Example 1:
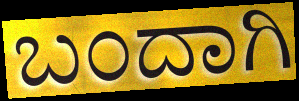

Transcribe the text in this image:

ಬಂದಾಗಿ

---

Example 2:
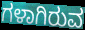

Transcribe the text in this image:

ಗಳಾಗಿರುವ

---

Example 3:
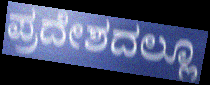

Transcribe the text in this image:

ಪ್ರದೇಶದಲ್ಲೂ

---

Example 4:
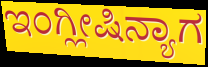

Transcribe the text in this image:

ಇಂಗ್ಲೀಷಿನ್ಯಾಗ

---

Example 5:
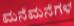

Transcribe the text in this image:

ಮನೆಮನೆಗಳ